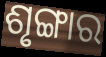
ଶୃଙ୍ଗାର